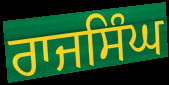
ਰਾਜਸਿੰਘ